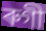
ৰুগী